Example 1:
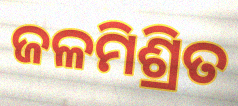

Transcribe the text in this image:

ଜଳମିଶ୍ରିତ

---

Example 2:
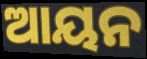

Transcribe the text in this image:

ଆୟନ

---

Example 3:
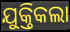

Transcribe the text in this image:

ଯୁକ୍ତିକଲା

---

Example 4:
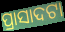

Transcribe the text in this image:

ପ୍ରାସାଦଟା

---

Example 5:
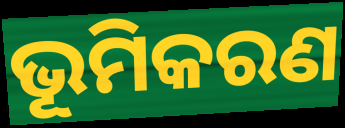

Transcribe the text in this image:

ଭୂମିକରଣ